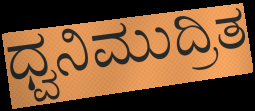
ಧ್ವನಿಮುದ್ರಿತ